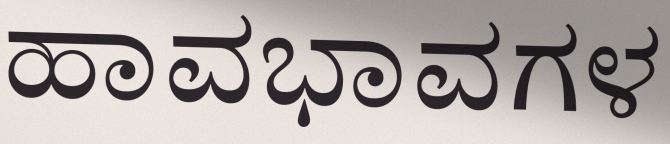
ಹಾವಭಾವಗಳ